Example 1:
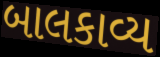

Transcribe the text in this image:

બાલકાવ્ય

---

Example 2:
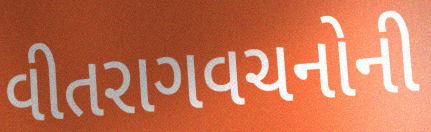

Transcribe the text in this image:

વીતરાગવચનોની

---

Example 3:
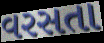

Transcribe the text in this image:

વરસતા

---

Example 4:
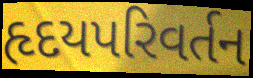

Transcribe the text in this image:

હૃદયપરિવર્તન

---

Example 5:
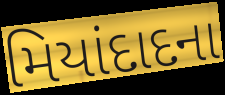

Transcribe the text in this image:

મિયાંદાદના